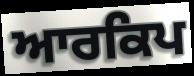
ਆਰਕਿਪ